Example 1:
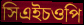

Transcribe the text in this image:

সিএইচওপি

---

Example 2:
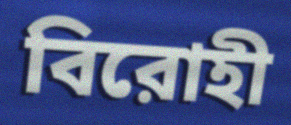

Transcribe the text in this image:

বিরোহী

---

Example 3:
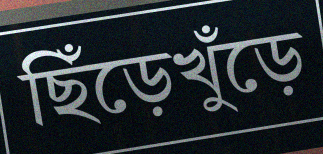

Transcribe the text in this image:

ছিঁড়েখুঁড়ে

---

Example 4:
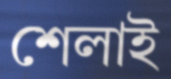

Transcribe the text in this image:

শেলাই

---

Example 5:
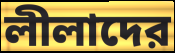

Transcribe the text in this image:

লীলাদের